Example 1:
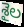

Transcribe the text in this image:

శైల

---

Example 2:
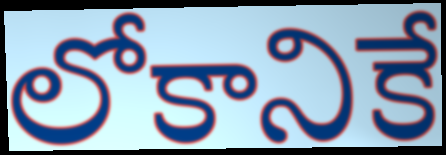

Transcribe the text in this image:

లోకానికే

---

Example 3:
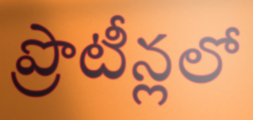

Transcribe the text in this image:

ప్రొటీన్లలో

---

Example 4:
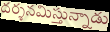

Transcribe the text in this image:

దర్శనమిస్తున్నాడు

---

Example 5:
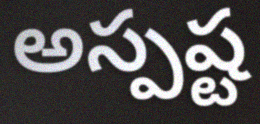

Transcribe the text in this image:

అస్పష్ట